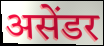
असेंडर